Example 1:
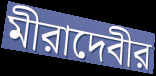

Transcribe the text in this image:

মীরাদেবীর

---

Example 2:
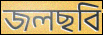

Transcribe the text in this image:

জলছবি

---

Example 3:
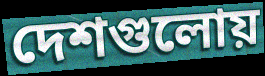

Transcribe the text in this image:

দেশগুলোয়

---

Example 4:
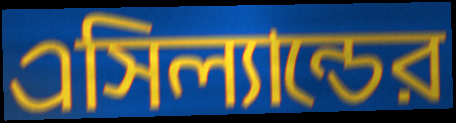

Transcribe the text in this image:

এসিল্যান্ডের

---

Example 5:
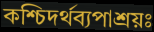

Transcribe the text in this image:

কশ্চিদর্থব্যপাশ্রয়ঃ